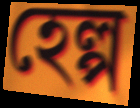
হেল্প